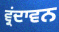
ਵ੍ਰਂਦਾਵਨ